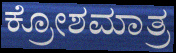
ಕ್ರೋಶಮಾತ್ರ